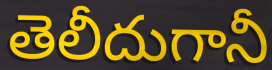
తెలీదుగానీ